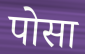
पोसा